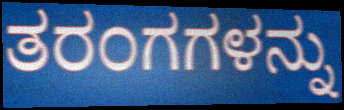
ತರಂಗಗಳನ್ನು